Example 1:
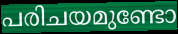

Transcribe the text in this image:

പരിചയമുണ്ടോ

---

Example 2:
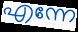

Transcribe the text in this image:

എന്നേ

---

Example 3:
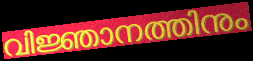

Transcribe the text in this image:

വിജ്ഞാനത്തിനും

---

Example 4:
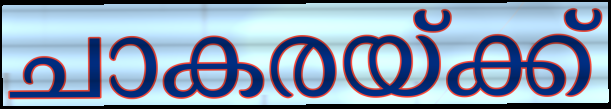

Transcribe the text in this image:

ചാകരയ്ക്ക്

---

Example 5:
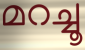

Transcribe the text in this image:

മറച്ചൂ